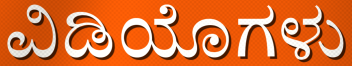
ವಿಡಿಯೊಗಳು